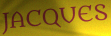
JACQUES